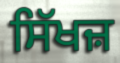
ਸਿੱਖਜ਼